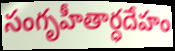
సంగృహీతార్ధదేహం